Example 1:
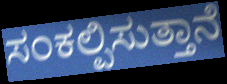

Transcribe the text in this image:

ಸಂಕಲ್ಪಿಸುತ್ತಾನೆ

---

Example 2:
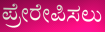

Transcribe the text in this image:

ಪ್ರೇರೇಪಿಸಲು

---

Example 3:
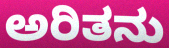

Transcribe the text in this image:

ಅರಿತನು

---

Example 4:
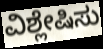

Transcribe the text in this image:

ವಿಶ್ಲೇಷಿಸು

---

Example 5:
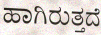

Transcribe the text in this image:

ಹಾಗಿರುತ್ತದೆ